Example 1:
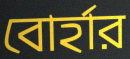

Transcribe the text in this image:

বোর্হার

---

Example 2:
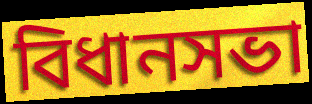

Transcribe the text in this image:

বিধানসভা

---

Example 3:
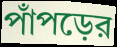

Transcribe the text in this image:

পাঁপড়ের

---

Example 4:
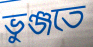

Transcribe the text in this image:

ভুঞ্জতে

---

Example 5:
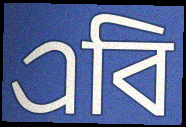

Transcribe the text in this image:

এবি